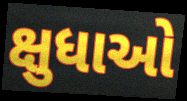
ક્ષુધાઓ